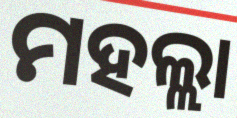
ମହଲ୍ଲା